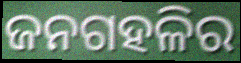
ଜନଗହଳିର